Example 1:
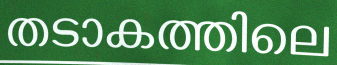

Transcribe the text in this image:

തടാകത്തിലെ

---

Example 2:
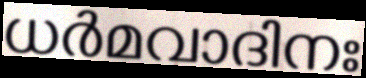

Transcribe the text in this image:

ധർമവാദിനഃ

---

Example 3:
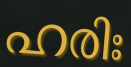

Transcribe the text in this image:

ഹരിഃ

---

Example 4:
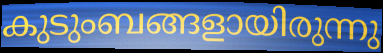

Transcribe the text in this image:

കുടുംബങ്ങളായിരുന്നു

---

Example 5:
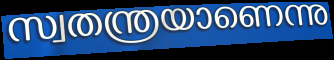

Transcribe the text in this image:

സ്വതന്ത്രയാണെന്നു